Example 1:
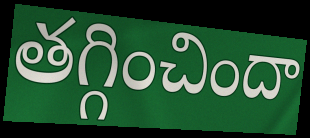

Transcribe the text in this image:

తగ్గించిందా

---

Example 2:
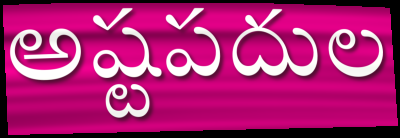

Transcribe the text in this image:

అష్టపదుల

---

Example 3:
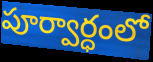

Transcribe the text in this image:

పూర్వార్ధంలో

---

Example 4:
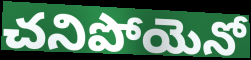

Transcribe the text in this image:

చనిపోయెనో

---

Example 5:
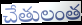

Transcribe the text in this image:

చేతులంత